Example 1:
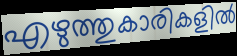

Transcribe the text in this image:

എഴുത്തുകാരികളിൽ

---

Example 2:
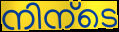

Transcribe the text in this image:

നിന്ടെ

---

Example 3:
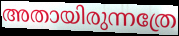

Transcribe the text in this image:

അതായിരുന്നത്രേ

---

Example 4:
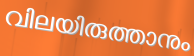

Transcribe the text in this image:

വിലയിരുത്താനും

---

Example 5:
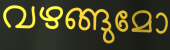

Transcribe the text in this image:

വഴങ്ങുമോ